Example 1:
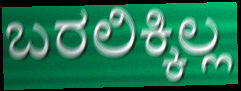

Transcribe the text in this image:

ಬರಲಿಕ್ಕಿಲ್ಲ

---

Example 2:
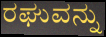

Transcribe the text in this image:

ರಘುವನ್ನು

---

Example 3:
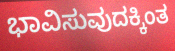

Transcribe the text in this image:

ಭಾವಿಸುವುದಕ್ಕಿಂತ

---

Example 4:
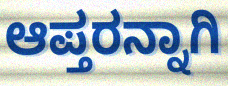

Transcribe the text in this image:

ಆಪ್ತರನ್ನಾಗಿ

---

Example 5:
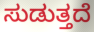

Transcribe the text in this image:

ಸುಡುತ್ತದೆ